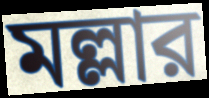
মল্লার